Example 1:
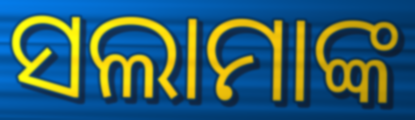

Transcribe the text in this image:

ସଲାମାଙ୍କ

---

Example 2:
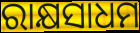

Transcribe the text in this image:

ରାକ୍ଷସାଧମ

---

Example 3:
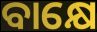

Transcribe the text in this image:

ବାକ୍ଷେ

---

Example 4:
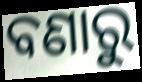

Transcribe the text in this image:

ବଣାରୁ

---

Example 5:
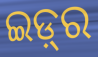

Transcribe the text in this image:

ଇଡ଼୍‍ର